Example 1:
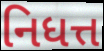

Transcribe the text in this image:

નિધત્ત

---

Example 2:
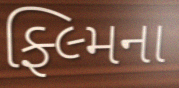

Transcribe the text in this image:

ફ્લ્મિના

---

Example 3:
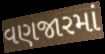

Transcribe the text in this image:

વણજારમાં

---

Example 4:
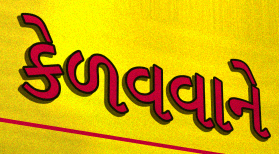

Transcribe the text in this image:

કેળવવાને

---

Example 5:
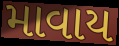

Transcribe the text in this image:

માવાય